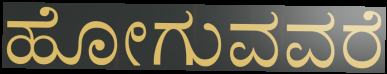
ಹೋಗುವವರೆ